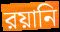
রয়ানি